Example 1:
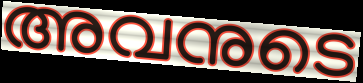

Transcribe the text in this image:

അവനുടെ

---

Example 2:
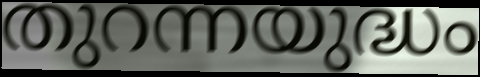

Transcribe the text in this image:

തുറന്നയുദ്ധം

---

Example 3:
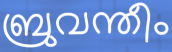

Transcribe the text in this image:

ബ്രുവന്തീം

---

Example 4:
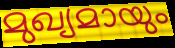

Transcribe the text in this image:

മുഖ്യമായും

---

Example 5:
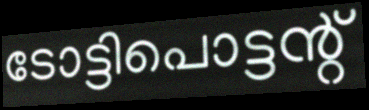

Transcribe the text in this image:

ടോട്ടിപൊട്ടന്റ്